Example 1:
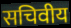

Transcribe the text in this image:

सचिवीय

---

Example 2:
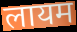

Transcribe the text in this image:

लायम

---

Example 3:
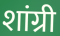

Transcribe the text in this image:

शांग्री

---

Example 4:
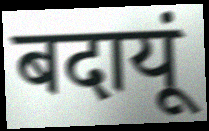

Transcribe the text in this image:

बदायूं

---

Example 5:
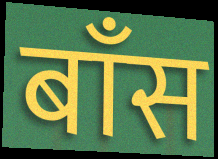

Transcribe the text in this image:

बाँस